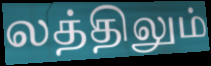
லத்திலும்